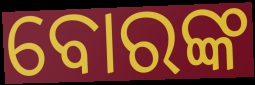
ବୋରଙ୍କ